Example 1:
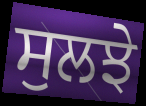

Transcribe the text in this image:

ਸੁਲਝੇ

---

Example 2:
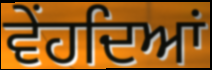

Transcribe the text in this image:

ਵੇਂਹਦਿਆਂ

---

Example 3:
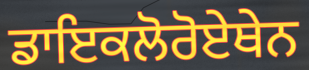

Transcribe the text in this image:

ਡਾਇਕਲੋਰੋਏਥੇਨ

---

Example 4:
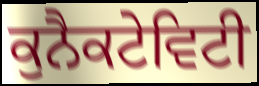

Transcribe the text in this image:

ਕੁਨੈਕਟੇਵਿਟੀ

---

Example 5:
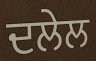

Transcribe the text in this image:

ਦਲੇਲ